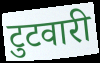
टुटवारी